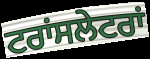
ਟਰਾਂਸਲੇਟਰਾਂ